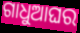
ଗାଧୁଆଘର